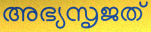
അഭ്യസൃജത്